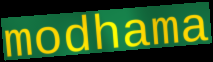
modhama